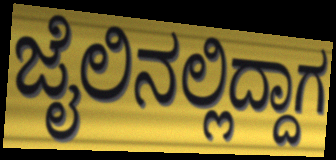
ಜೈಲಿನಲ್ಲಿದ್ದಾಗ